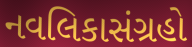
નવલિકાસંગ્રહો